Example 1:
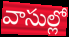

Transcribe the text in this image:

వాసుల్లో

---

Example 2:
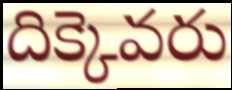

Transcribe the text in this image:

దిక్కెవరు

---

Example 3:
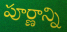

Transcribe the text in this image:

పూర్ణాన్ని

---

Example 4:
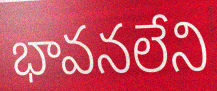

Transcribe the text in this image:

భావనలేని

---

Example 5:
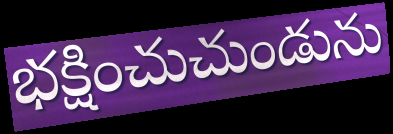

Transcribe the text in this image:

భక్షించుచుండును